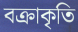
বক্রাকৃতি